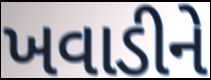
ખવાડીને